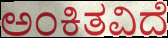
ಅಂಕಿತವಿದೆ